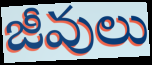
జీవులు